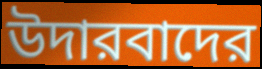
উদারবাদের